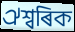
ঐশ্বৰিক